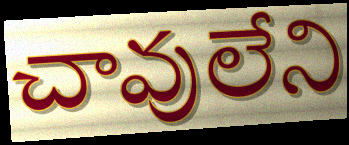
చావులేని